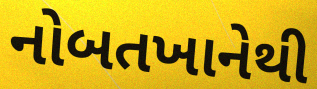
નોબતખાનેથી